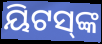
ୟିଟସ୍‌ଙ୍କ